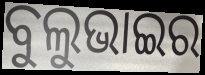
ବୁଲୁଭାଇର